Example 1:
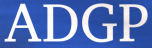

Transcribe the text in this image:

ADGP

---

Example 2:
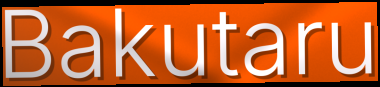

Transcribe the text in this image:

Bakutaru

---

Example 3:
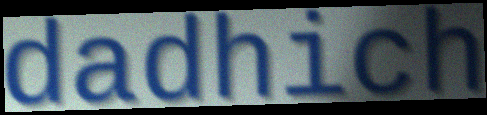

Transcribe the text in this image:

dadhich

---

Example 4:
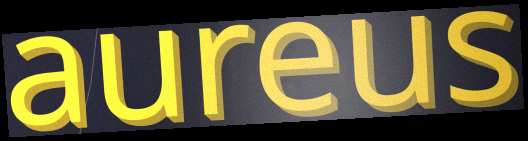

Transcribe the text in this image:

aureus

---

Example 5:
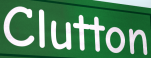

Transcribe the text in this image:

Clutton